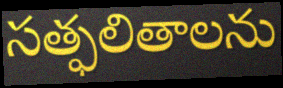
సత్ఫలితాలను